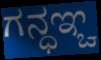
ಗನ್ಧಞ್ಚ